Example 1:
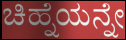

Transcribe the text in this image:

ಚಿಹ್ನೆಯನ್ನೇ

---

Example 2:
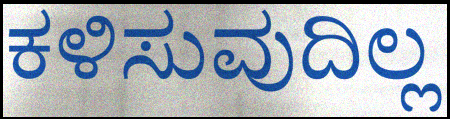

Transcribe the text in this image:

ಕಳಿಸುವುದಿಲ್ಲ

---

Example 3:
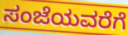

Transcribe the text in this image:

ಸಂಜೆಯವರೆಗೆ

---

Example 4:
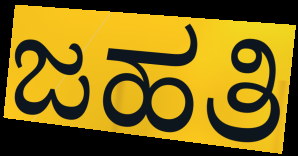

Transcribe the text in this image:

ಜಹತಿ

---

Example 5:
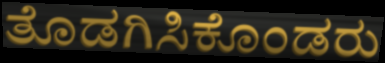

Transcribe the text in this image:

ತೊಡಗಿಸಿಕೊಂಡರು